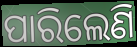
ପାରିଲେଣି